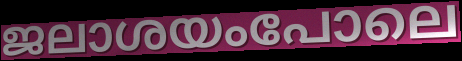
ജലാശയംപോലെ